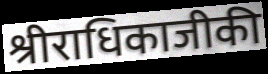
श्रीराधिकाजीकी